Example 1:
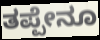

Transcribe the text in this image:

ತಪ್ಪೇನೂ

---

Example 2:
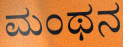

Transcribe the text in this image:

ಮಂಥನ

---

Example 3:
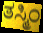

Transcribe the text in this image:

ತಸ್ಮಿಂ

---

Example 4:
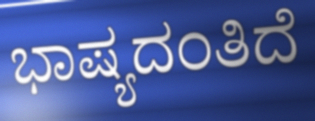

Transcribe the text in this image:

ಭಾಷ್ಯದಂತಿದೆ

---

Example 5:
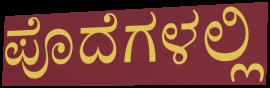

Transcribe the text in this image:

ಪೊದೆಗಳಲ್ಲಿ